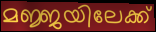
മജ്ജയിലേക്ക്